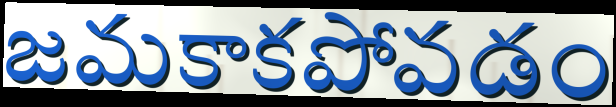
జమకాకపోవడం